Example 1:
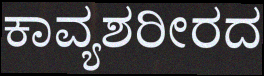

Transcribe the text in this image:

ಕಾವ್ಯಶರೀರದ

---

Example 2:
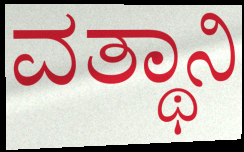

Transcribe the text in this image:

ವತ್ಥಾನಿ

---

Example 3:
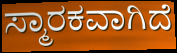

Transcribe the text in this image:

ಸ್ಮಾರಕವಾಗಿದೆ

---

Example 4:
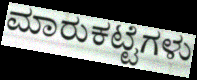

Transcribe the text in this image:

ಮಾರುಕಟ್ಟೆಗಳು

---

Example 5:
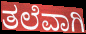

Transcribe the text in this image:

ತಲೆವಾಗಿ